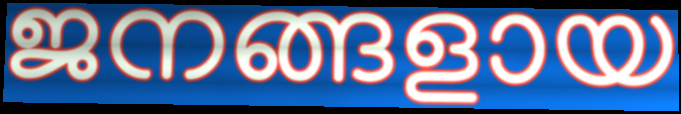
ജനങ്ങളായ